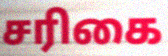
சரிகை